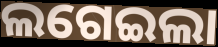
ଲଗେଇଲା